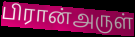
பிரான்அருள்